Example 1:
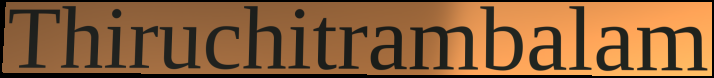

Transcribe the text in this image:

Thiruchitrambalam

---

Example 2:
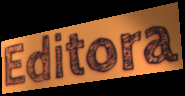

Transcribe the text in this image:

Editora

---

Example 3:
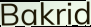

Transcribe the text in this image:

Bakrid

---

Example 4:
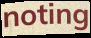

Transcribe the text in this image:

noting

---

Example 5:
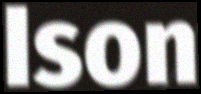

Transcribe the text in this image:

Ison